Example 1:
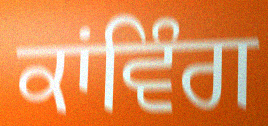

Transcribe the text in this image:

ਕਾਂਵਿੰਗ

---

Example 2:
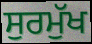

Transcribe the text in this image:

ਸੁਰਮੁੱਖ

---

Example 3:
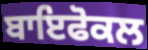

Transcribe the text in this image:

ਬਾਇਫੋਕਲ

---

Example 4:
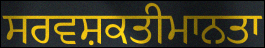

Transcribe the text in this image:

ਸਰਵਸ਼ਕਤੀਮਾਨਤਾ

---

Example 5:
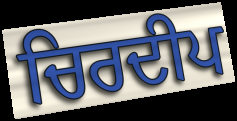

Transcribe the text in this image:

ਚਿਰਦੀਪ